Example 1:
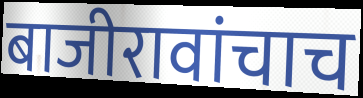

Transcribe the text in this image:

बाजीरावांचाच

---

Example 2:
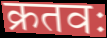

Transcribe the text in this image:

क्रतवः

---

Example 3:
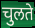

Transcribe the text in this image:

चुलते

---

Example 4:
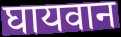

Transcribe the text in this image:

घायवान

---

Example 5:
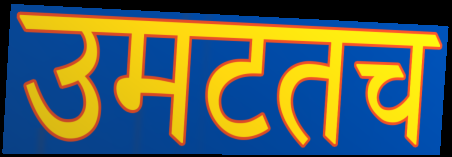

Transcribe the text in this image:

उमटतच